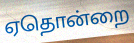
ஏதொன்றை